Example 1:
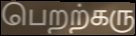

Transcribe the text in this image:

பெறற்கரு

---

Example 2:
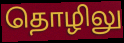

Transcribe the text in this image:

தொழிலு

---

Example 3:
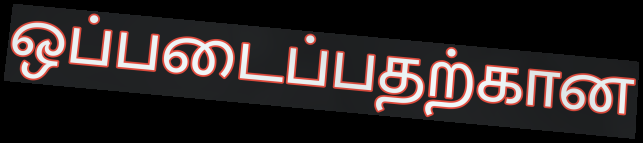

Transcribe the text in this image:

ஒப்படைப்பதற்கான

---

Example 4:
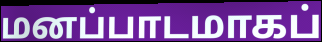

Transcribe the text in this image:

மனப்பாடமாகப்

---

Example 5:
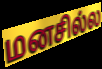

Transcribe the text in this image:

மனசில்ல